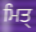
ਮਿਤ੍